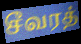
சீவரத்